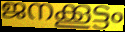
ജനക്കൂട്ടം